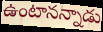
ఉంటానన్నాడు